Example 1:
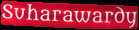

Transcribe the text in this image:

Suharawardy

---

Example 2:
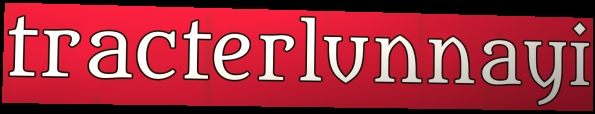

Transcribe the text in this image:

tracterlunnayi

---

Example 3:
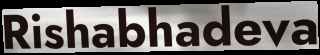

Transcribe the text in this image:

Rishabhadeva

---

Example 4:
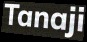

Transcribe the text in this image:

Tanaji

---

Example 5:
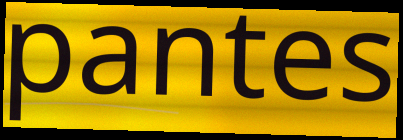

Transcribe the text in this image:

pantes